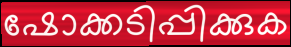
ഷോക്കടിപ്പിക്കുക